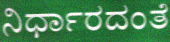
ನಿರ್ಧಾರದಂತೆ